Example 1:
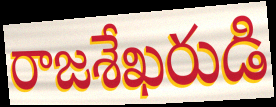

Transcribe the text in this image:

రాజశేఖరుడి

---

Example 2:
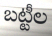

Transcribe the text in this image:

బట్టీల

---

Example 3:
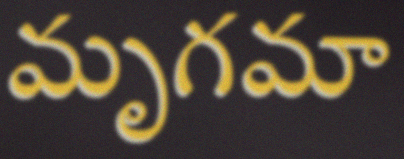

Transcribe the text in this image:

మృగమా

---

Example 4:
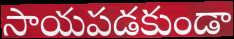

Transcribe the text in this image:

సాయపడకుండా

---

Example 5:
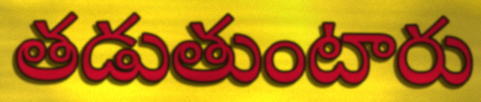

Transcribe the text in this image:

తడుతుంటారు